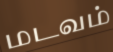
மடவம்